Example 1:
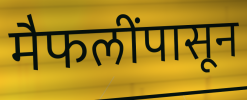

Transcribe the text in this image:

मैफलींपासून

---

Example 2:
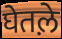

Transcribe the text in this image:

घेतल़े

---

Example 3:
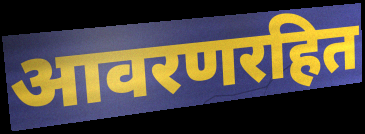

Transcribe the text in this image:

आवरणरहित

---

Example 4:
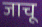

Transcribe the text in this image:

जाचू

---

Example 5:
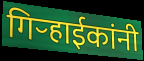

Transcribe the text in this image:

गिऱ्हाईकांनी